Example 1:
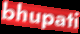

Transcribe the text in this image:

bhupati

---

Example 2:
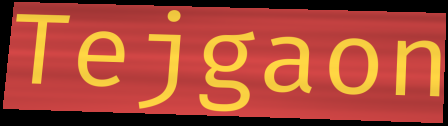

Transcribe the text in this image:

Tejgaon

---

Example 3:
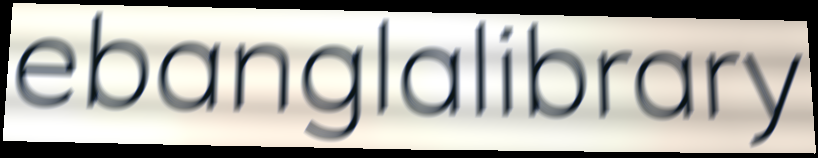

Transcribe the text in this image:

ebanglalibrary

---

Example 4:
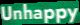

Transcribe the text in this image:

Unhappy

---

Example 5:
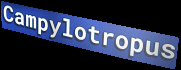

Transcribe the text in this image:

Campylotropus